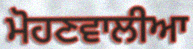
ਮੋਹਣਵਾਲੀਆ